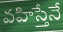
వహిస్తేనే